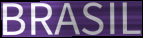
BRASIL